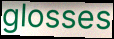
glosses